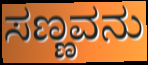
ಸಣ್ಣವನು